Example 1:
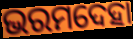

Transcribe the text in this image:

ଭରମଦେହା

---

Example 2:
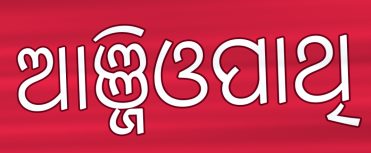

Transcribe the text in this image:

ଆଞ୍ଜିଓପାଥି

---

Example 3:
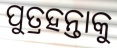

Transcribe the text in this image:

ପୁତ୍ରହନ୍ତାକୁ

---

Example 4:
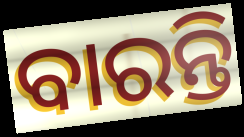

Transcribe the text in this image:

ବାରନ୍ତି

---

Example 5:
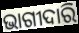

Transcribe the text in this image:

ଭାଗୀଦାରି